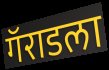
गॅराडला